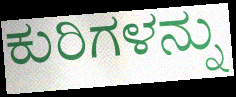
ಕುರಿಗಳನ್ನು